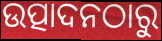
ଉତ୍ପାଦନଠାରୁ